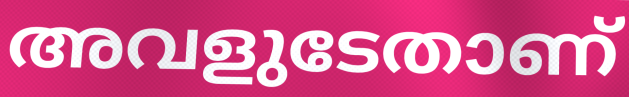
അവളുടേതാണ്